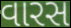
વારસ